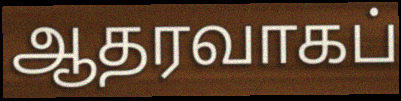
ஆதரவாகப்